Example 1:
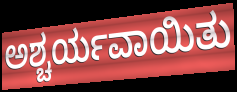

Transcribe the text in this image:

ಅಶ್ಚರ್ಯವಾಯಿತು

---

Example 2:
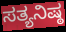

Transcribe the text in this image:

ಸತ್ಯನಿಷ್ಠ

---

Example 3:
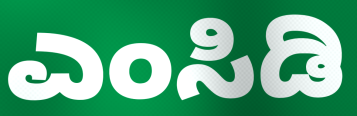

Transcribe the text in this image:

ಎಂಸಿಡಿ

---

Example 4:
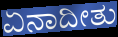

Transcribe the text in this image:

ಏನಾದೀತು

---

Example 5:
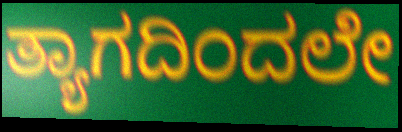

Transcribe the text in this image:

ತ್ಯಾಗದಿಂದಲೇ